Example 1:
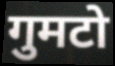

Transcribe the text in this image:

गुमटो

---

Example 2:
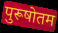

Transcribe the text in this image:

पुरूषोतम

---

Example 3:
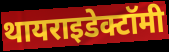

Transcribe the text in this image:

थायराइडेक्टॉमी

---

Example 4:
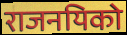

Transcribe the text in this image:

राजनयिको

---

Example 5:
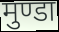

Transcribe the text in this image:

मुण्डा